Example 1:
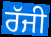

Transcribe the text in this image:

ਰੱਜੀ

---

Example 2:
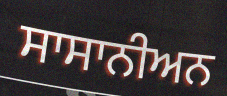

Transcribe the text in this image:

ਸਾਸਾਨੀਅਨ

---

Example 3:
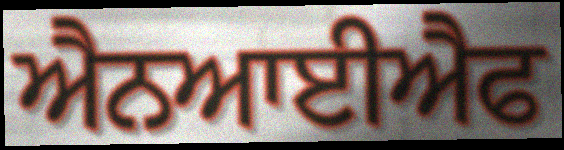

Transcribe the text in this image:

ਐਨਆਈਐਫ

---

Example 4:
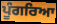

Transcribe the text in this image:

ਪੂੰਗਰਿਆ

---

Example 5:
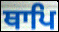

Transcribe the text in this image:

ਥਾਪਿ